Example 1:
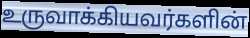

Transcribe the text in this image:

உருவாக்கியவர்களின்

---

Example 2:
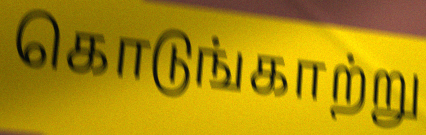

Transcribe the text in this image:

கொடுங்காற்று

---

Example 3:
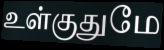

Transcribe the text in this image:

உள்குதுமே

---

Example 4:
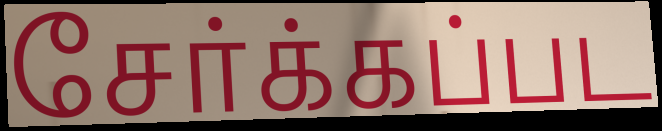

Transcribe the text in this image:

சேர்க்கப்பட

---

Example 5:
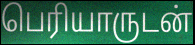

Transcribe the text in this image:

பெரியாருடன்